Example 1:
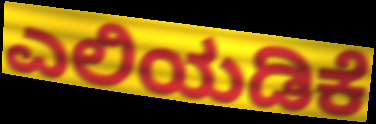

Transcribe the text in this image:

ಎಲಿಯಡಿಕೆ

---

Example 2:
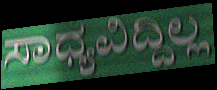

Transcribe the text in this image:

ಸಾಧ್ಯವಿದ್ದಿಲ್ಲ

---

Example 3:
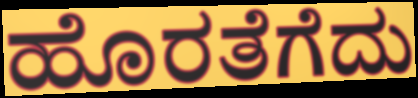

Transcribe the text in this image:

ಹೊರತೆಗೆದು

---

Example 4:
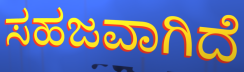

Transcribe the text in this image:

ಸಹಜವಾಗಿದೆ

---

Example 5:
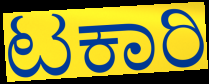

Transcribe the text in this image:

ಟಕಾರಿ